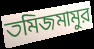
তমিজমামুর